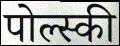
पोल्स्की